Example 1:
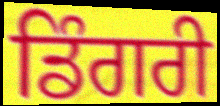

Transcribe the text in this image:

ਡਿੰਗਰੀ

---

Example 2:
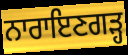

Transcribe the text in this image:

ਨਾਰਾਇਣਗੜ੍ਹ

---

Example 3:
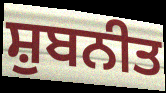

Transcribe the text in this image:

ਸ਼ੁਬਨੀਤ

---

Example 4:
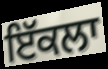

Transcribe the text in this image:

ਇੱਕਲਾ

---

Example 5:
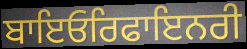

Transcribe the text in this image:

ਬਾਇਓਰਿਫਾਇਨਰੀ